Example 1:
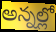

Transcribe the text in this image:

అన్నల్లో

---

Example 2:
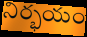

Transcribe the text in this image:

నిర్భయం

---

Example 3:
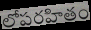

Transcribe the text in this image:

లోపరహితం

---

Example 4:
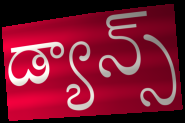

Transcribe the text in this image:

డ్యాన్స్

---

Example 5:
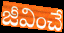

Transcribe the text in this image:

జీవించే